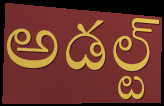
అడల్ట్